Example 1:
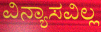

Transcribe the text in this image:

ವಿನ್ಯಾಸವಿಲ್ಲ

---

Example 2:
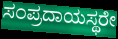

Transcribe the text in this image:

ಸಂಪ್ರದಾಯಸ್ಥರೇ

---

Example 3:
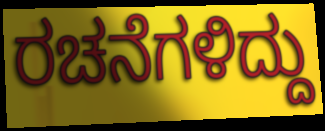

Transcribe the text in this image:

ರಚನೆಗಳಿದ್ದು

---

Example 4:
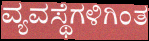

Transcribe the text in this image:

ವ್ಯವಸ್ಥೆಗಳಿಗಿಂತ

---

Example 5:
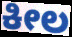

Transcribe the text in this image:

ಕೀಲ